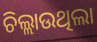
ଚିଲ୍ଲାଉଥିଲା